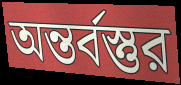
অন্তর্বস্তুর